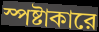
স্পষ্টাকারে